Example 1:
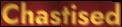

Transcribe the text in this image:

Chastised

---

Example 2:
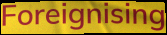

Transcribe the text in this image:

Foreignising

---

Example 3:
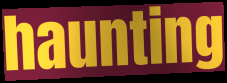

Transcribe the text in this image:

haunting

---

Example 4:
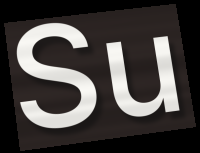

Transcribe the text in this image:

Su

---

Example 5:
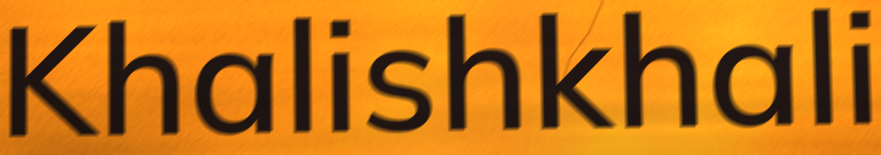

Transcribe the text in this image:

Khalishkhali